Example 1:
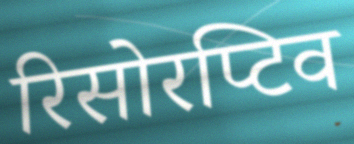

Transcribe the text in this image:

रिसोरप्टिव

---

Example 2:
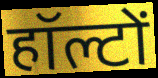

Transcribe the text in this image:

हॉल्टों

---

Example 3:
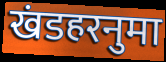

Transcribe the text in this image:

खंडहरनुमा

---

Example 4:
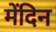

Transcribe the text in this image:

मेंदिन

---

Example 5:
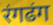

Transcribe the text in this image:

रंगढंग